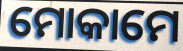
ମୋକାମେ